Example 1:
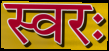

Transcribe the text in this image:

स्वरः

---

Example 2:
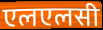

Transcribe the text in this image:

एलएलसी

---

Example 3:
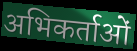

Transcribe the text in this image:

अभिकर्ताओं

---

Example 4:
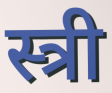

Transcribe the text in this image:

स्त्री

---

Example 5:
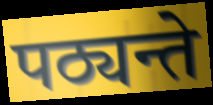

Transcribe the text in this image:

पठ्यन्ते